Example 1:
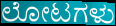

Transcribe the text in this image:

ಲೋಟಗಳು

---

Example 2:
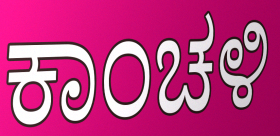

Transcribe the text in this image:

ಕಾಂಚಳಿ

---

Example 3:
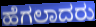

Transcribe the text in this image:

ಹೆಗಲಾದರು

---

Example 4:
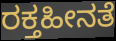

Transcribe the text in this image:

ರಕ್ತಹೀನತೆ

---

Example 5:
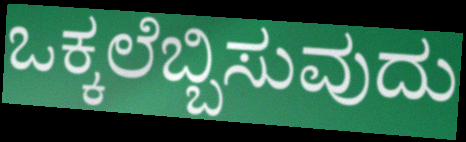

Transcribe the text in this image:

ಒಕ್ಕಲೆಬ್ಬಿಸುವುದು